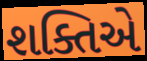
શક્તિએ